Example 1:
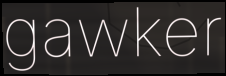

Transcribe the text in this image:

gawker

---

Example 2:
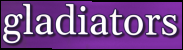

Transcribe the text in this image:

gladiators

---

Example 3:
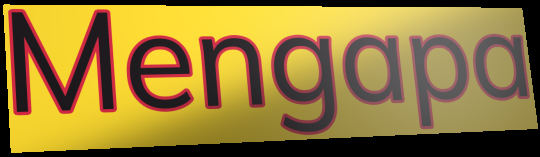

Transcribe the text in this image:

Mengapa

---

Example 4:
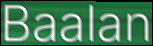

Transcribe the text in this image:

Baalan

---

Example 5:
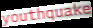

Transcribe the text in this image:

youthquake